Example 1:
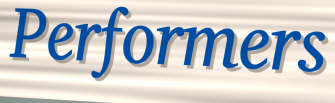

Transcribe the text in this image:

Performers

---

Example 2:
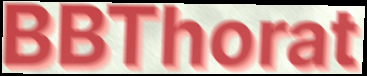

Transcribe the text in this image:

BBThorat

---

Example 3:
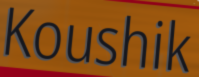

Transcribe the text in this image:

Koushik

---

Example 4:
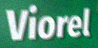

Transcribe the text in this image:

Viorel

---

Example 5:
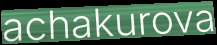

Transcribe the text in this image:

achakurova